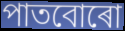
পাতবোৰো